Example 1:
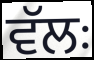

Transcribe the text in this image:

ਵੱਲਃ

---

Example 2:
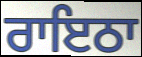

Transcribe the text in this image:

ਰਾਇਠਾ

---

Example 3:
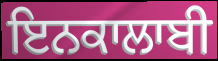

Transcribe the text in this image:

ਇਨਕਾਲਾਬੀ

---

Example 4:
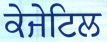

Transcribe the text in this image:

ਕੇਜੇਟਿਲ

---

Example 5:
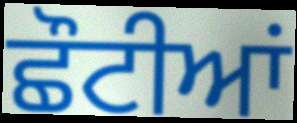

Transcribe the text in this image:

ਛੌਟੀਆਂ